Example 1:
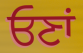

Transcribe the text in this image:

ਓਣਾਂ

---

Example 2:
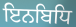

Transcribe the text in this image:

ਇਨਬਿਧਿ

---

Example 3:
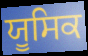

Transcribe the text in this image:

ਯੂਸਿਕ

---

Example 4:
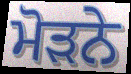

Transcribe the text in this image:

ਮੋੜਨੇ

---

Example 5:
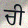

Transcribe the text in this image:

ਚੀ